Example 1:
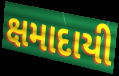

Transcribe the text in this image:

ક્ષમાદાયી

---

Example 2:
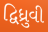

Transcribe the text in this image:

દ્વિધ્રુવી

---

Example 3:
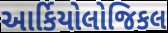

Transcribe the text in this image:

આર્કિયોલોજિકલ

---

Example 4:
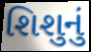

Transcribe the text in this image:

શિશુનું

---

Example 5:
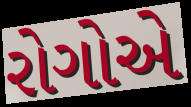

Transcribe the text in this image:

રોગોએ